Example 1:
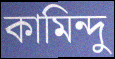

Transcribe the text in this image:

কামিন্দু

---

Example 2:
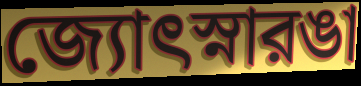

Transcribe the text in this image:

জ্যোৎস্নারঙা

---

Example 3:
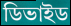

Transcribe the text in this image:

ডিভাইড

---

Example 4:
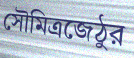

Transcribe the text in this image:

সৌমিত্রজেঠুর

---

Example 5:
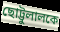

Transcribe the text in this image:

ছোট্টুলালকে